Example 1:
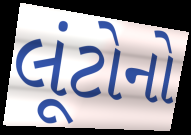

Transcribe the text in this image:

લૂંટોનો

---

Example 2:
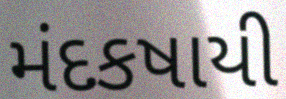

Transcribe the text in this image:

મંદકષાયી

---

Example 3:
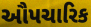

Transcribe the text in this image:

ઔપચારિક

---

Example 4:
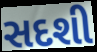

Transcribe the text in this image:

સદશી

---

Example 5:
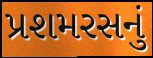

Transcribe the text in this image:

પ્રશમરસનું